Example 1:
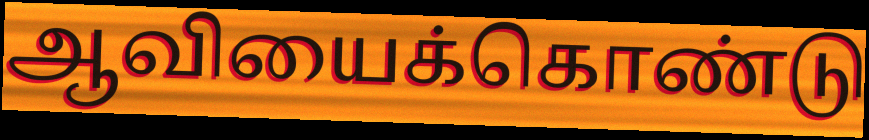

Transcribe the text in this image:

ஆவியைக்கொண்டு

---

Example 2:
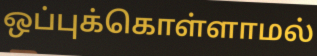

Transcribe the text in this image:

ஒப்புக்கொள்ளாமல்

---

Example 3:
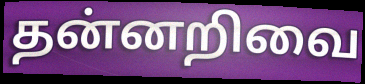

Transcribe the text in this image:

தன்னறிவை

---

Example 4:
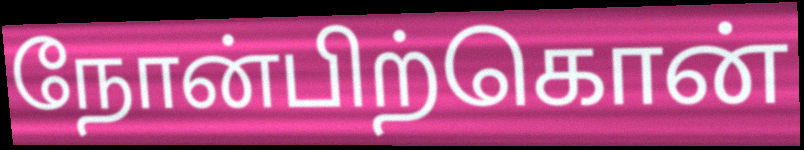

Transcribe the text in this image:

நோன்பிற்கொன்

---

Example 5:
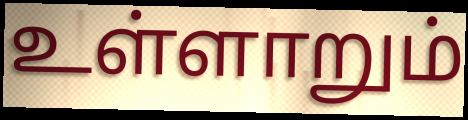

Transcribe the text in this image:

உள்ளாறும்